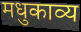
मधुकाव्य